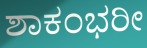
ಶಾಕಂಭರೀ